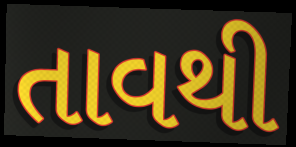
તાવથી